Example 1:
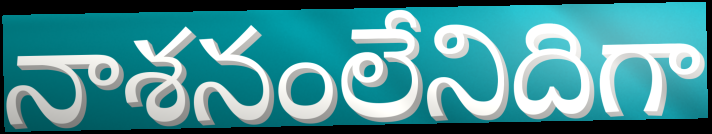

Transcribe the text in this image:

నాశనంలేనిదిగా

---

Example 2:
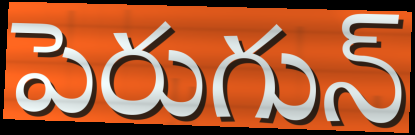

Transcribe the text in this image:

పెరుగున్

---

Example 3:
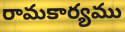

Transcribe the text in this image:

రామకార్యము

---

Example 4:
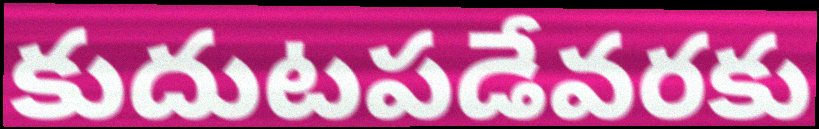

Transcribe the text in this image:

కుదుటపడేవరకు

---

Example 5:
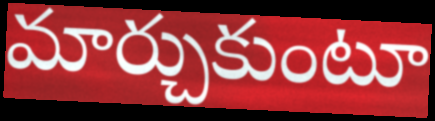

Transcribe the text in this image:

మార్చుకుంటూ